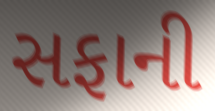
સફાની